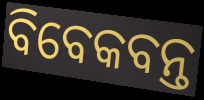
ବିବେକବନ୍ତ